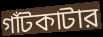
গাঁটকাটার